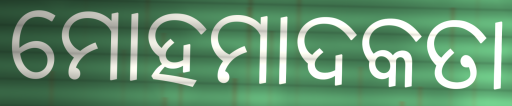
ମୋହମାଦକତା